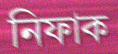
নিফাক